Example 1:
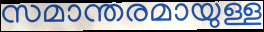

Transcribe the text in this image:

സമാന്തരമായുള്ള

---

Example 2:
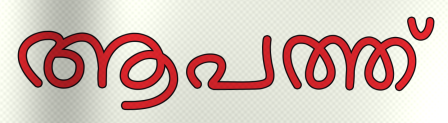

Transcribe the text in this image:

ആപത്ത്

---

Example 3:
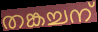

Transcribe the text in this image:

തങ്കച്ചന്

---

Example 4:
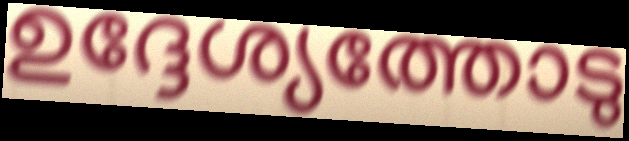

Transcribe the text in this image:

ഉദ്ദേശ്യത്തോടു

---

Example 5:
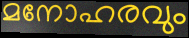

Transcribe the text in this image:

മനോഹരവും